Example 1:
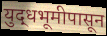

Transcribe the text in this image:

युद्धभूमीपासून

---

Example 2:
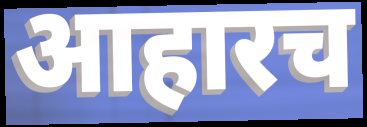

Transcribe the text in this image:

आहारच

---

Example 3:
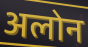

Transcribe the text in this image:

अलोन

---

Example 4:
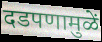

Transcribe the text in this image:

दडपणामुळें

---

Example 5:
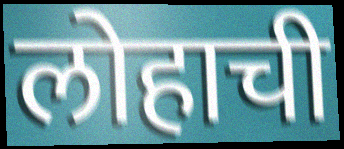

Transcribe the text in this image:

लोहाची